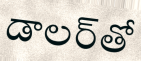
డాలర్‌తో